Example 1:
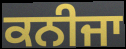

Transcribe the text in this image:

ਕਨੀਜਾ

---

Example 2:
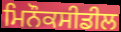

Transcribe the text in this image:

ਮਿਨੌਕਸੀਡੀਲ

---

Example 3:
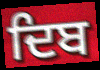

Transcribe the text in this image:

ਦਿਬ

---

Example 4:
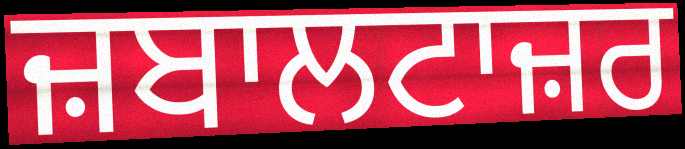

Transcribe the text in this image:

ਜ਼ਬਾਲਟਾਜ਼ਰ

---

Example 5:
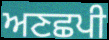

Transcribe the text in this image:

ਅਣਛਪੀ